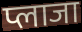
प्‍लाजा